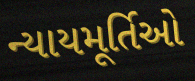
ન્યાયમૂર્તિઓ